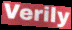
Verily